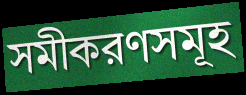
সমীকরণসমূহ